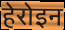
हेरोइन